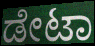
ಡೇಟಾ